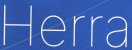
Herra